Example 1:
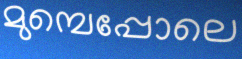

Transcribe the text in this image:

മുമ്പെപ്പോലെ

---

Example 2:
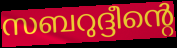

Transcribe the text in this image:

സബറുദ്ദീന്റെ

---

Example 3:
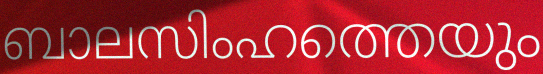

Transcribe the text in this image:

ബാലസിംഹത്തെയും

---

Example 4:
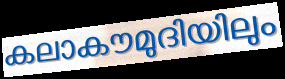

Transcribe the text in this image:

കലാകൗമുദിയിലും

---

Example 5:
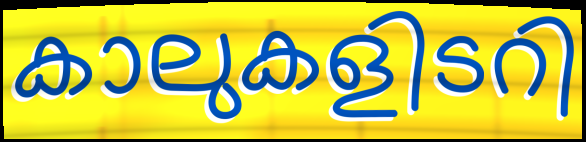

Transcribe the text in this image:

കാലുകളിടറി